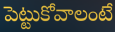
పెట్టుకోవాలంటే